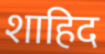
शाहिद